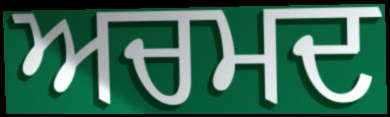
ਅਚਮਦ